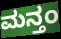
ಮನ್ತಂ